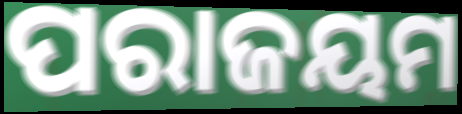
ପରାଜୟମ